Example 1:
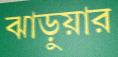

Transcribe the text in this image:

ঝাড়ুয়ার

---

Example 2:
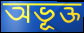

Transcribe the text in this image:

অভূক্ত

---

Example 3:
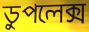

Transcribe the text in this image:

ডুপলেক্স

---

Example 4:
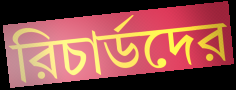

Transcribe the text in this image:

রিচার্ডদের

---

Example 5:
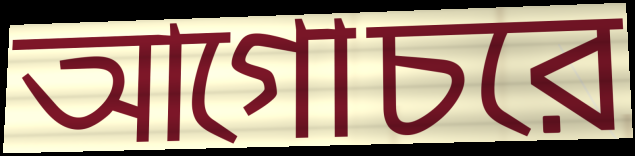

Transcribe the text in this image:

আগোচরে